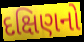
દક્ષિણનો